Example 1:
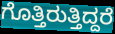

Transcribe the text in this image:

ಗೊತ್ತಿರುತ್ತಿದ್ದರೆ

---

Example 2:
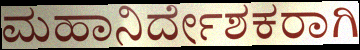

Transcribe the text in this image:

ಮಹಾನಿರ್ದೇಶಕರಾಗಿ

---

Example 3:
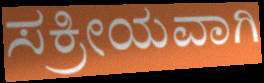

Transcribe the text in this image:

ಸಕ್ರೀಯವಾಗಿ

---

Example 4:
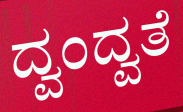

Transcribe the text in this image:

ದ್ವಂದ್ವತೆ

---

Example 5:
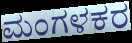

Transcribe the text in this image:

ಮಂಗಳಕರ